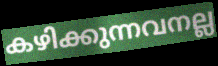
കഴിക്കുന്നവനല്ല